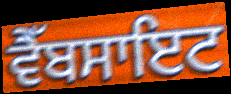
ਵੈੱਬਸਾਇਟ